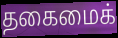
தகைமைக்